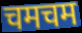
चमचम